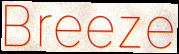
Breeze